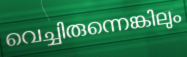
വെച്ചിരുന്നെങ്കിലും